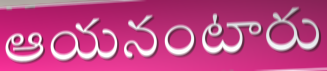
ఆయనంటారు